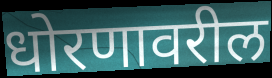
धोरणावरील